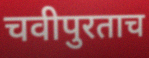
चवीपुरताच